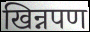
खिन्नपण